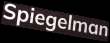
Spiegelman